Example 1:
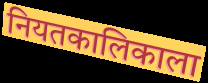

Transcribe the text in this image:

नियतकालिकाला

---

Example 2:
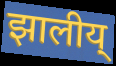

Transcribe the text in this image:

झालीय्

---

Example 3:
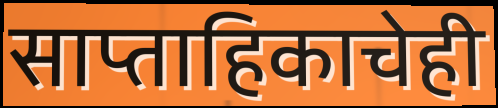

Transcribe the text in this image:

साप्ताहिकाचेही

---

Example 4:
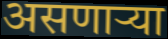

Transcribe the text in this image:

असणाऱ्या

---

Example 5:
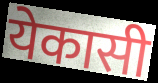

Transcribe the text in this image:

येकासी